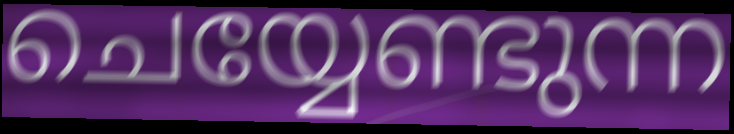
ചെയ്യേണ്ടുന്ന